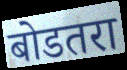
बोडतरा